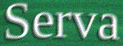
Serva